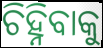
ଚିହ୍ନିବାକୁ